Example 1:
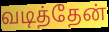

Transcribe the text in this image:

வடித்தேன்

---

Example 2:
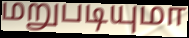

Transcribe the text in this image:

மறுபடியுமா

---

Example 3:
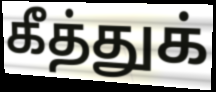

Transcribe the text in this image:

கீத்துக்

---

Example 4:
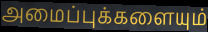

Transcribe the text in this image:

அமைப்புக்களையும்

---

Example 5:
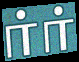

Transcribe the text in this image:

ர்ர்